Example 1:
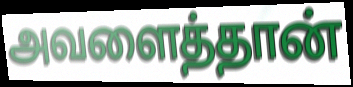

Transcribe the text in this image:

அவளைத்தான்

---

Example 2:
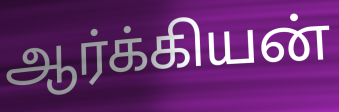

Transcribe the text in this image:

ஆர்க்கியன்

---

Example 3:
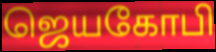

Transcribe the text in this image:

ஜெயகோபி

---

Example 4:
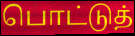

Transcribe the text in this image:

பொட்டுத்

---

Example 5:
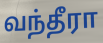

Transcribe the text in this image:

வந்தீரா